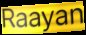
Raayan